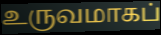
உருவமாகப்